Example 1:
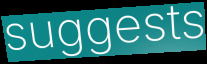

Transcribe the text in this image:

suggests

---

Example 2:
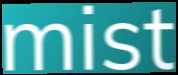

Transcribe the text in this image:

mist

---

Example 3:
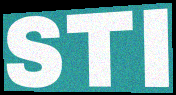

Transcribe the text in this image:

STI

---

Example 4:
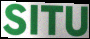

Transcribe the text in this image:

SITU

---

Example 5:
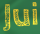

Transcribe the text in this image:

Jui